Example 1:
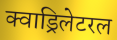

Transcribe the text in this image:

क्वाड्रिलेटरल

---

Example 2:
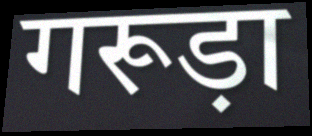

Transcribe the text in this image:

गरूड़ा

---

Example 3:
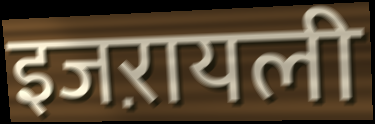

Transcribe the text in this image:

इजऱायली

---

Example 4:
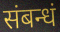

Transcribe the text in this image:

संबन्धं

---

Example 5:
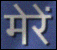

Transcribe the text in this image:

मेरें